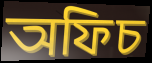
অফিচ